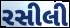
રસીલી